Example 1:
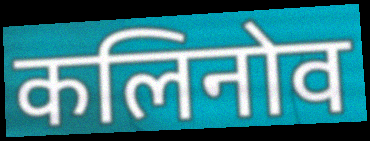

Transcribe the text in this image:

कलिनोव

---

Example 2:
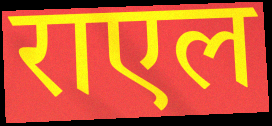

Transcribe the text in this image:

राएल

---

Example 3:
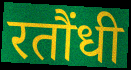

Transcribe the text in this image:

रतौंधी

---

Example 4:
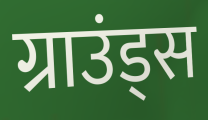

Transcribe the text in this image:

ग्राउंड्स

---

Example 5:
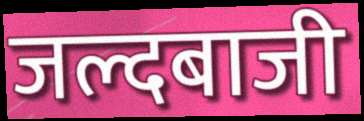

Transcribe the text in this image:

जल्दबाजी